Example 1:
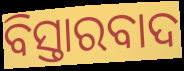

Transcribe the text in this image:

ବିସ୍ତାରବାଦ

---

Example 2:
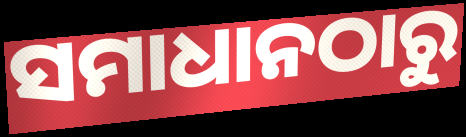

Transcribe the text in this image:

ସମାଧାନଠାରୁ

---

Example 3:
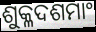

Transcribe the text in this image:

ଶୁକ୍ଳଦଶମାଂ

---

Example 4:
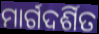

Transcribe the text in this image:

ମାର୍ଗଦର୍ଶିତ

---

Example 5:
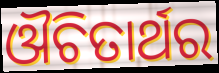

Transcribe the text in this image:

ଔଚିତାର୍ଥର